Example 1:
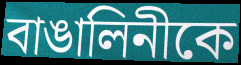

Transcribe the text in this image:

বাঙালিনীকে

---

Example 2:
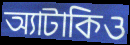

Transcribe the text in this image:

অ্যাটাকিও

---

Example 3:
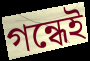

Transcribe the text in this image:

গন্ধেই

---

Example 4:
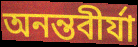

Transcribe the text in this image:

অনন্তবীর্যা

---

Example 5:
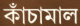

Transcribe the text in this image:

কাঁচামাল